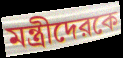
মন্ত্রীদেরকে